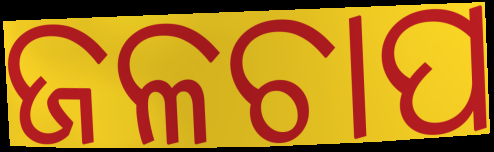
ଜଳଚାପ